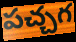
పచ్చగ